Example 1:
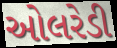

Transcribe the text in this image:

ઓલરેડી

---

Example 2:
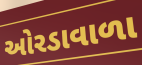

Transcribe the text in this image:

ઓરડાવાળા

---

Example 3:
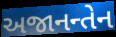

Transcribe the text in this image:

અજાનન્તેન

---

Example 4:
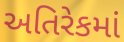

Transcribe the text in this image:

અતિરેકમાં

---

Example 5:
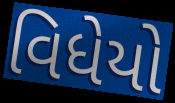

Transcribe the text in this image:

વિધેયો